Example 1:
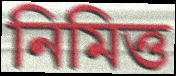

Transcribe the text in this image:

নিমিত্ত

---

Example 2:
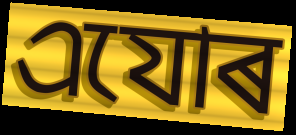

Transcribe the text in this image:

এযোৰ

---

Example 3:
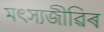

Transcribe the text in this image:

মৎস্যজীৱিৰ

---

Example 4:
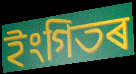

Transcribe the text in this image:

ইংগিতৰ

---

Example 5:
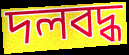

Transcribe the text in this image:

দলবদ্ধ